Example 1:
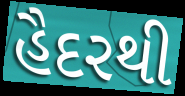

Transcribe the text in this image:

હૈદરથી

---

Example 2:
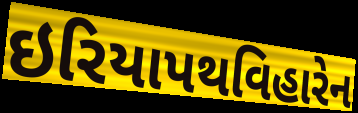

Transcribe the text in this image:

ઇરિયાપથવિહારેન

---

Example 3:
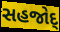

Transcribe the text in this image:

સહજોદ્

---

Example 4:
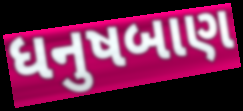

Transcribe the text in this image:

ધનુષબાણ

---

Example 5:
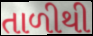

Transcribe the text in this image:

તાળીથી